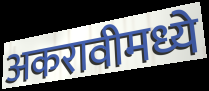
अकरावीमध्ये